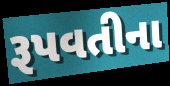
રૂપવતીના